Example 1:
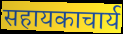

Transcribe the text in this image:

सहायकाचार्य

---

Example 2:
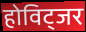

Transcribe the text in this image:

होविट्जर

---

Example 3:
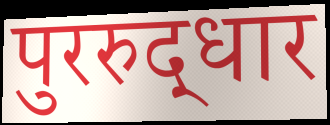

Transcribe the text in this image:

पुररुद्धार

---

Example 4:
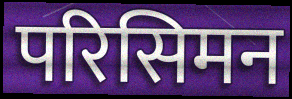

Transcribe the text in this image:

परिसिमन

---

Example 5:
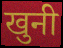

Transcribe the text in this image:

खुनी